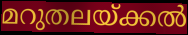
മറുതലയ്ക്കൽ